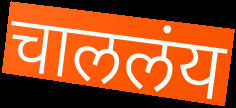
चाललंय